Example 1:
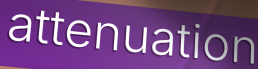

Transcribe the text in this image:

attenuation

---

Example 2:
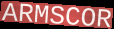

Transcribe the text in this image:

ARMSCOR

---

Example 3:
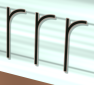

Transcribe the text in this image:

rrr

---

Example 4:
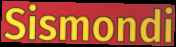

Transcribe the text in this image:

Sismondi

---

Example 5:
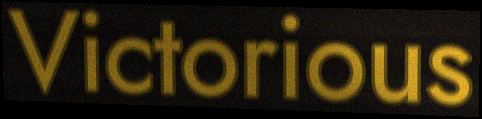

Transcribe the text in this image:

Victorious